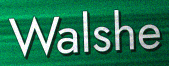
Walshe